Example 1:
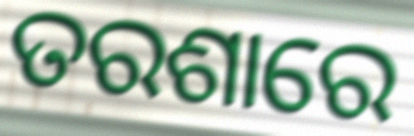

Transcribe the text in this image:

ତରଶାରେ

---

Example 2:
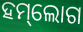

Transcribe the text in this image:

ହମ୍‌ଲୋଗ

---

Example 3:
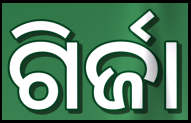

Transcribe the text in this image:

ଗିର୍ଜା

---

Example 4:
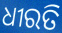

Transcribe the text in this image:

ଧୀରତି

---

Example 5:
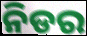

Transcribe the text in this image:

ନିଡର